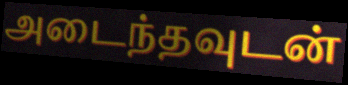
அடைந்தவுடன்